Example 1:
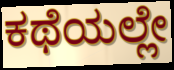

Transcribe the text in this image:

ಕಥೆಯಲ್ಲೇ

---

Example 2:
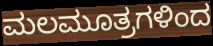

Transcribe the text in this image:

ಮಲಮೂತ್ರಗಳಿಂದ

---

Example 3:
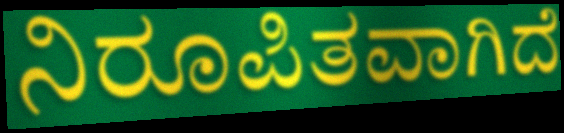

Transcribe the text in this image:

ನಿರೂಪಿತವಾಗಿದೆ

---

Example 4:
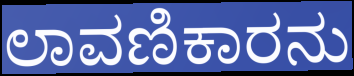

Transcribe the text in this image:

ಲಾವಣಿಕಾರನು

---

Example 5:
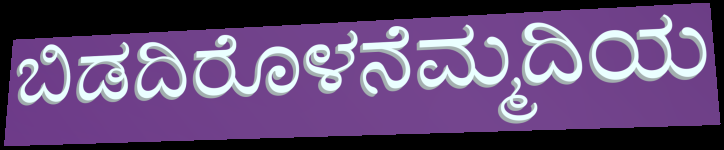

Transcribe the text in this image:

ಬಿಡದಿರೊಳನೆಮ್ಮದಿಯ